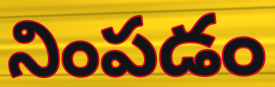
నింపడం